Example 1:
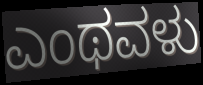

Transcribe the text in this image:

ಎಂಥವಳು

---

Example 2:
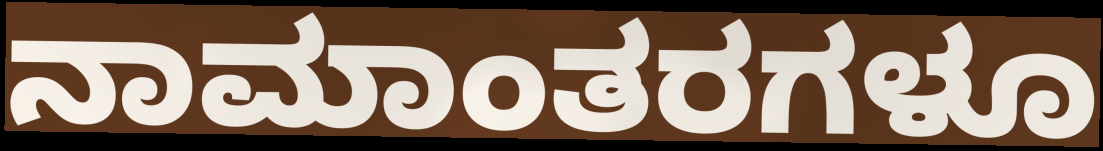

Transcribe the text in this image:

ನಾಮಾಂತರಗಳೂ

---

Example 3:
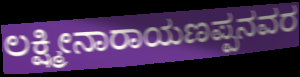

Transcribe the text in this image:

ಲಕ್ಷ್ಮೀನಾರಾಯಣಪ್ಪನವರ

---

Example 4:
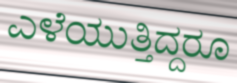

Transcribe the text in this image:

ಎಳೆಯುತ್ತಿದ್ದರೂ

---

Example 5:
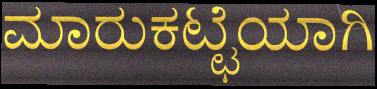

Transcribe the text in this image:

ಮಾರುಕಟ್ಟೆಯಾಗಿ